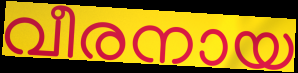
വീരനായ